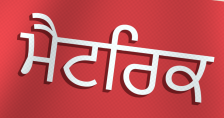
ਮੈਟਰਿਕ